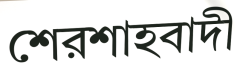
শেরশাহবাদী